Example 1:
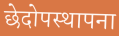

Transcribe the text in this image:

छेदोपस्थापना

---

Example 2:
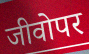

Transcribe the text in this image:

जीवोपर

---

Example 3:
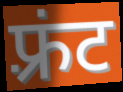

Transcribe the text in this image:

फ़्रंट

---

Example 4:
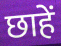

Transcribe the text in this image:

छाहें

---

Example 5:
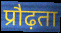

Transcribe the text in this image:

प्रौढ़ता